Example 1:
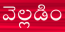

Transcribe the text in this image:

వెల్లడిం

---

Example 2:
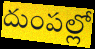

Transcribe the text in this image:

దుంపల్లో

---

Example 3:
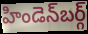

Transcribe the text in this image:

హిండెన్‌బర్గ్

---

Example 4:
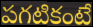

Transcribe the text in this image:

పగటికంటే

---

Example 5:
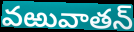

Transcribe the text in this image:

వఱువాతన్